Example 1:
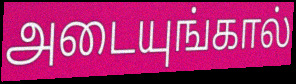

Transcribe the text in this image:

அடையுங்கால்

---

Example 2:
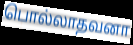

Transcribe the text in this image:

பொல்லாதவனா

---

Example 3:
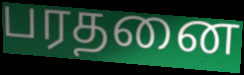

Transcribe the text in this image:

பரதனை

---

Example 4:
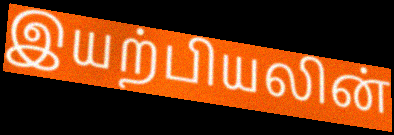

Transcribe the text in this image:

இயற்பியலின்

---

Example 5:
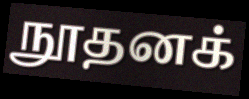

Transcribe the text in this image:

நூதனக்